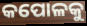
କପୋଳକୁ